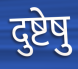
दुष्टेषु